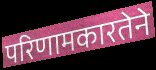
परिणामकारतेने